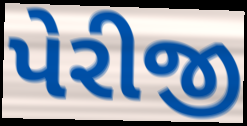
પેરીજી